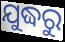
ଯୁଦ୍ଧରୁ